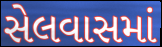
સેલવાસમાં